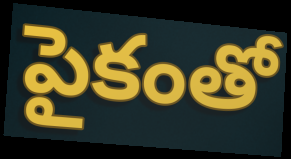
పైకంతో